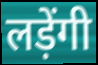
लड़ेंगी